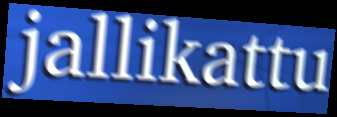
jallikattu